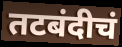
तटबंदीचं